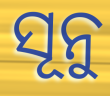
ସୂନୁ